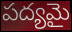
పద్యమై